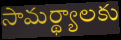
సామర్థ్యాలకు